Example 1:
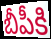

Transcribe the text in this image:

బీపీకి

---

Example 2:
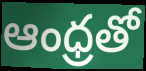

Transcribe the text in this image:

ఆంధ్రతో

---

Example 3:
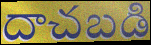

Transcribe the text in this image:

దాచబడి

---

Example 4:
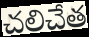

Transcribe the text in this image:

చలిచేత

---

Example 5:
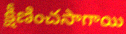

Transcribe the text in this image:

క్షీణించసాగాయి